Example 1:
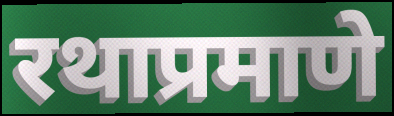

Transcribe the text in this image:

रथाप्रमाणे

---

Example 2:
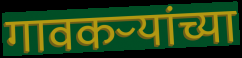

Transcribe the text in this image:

गावकऱ्यांच्या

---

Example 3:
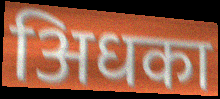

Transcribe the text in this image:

अिधका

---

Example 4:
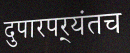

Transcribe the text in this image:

दुपारपर्यंतच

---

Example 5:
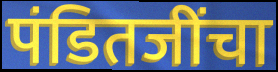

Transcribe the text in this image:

पंडितजींचा